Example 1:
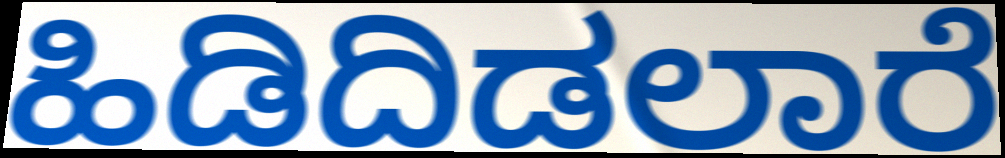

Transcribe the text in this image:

ಹಿಡಿದಿಡಲಾರೆ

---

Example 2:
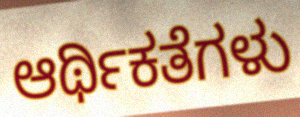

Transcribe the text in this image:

ಆರ್ಥಿಕತೆಗಳು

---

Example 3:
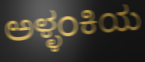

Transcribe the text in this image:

ಅಳ್ಳಂಕಿಯ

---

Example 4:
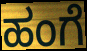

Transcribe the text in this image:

ಹಂಗೆ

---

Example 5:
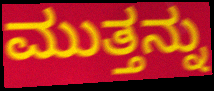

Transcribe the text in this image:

ಮುತ್ತನ್ನು